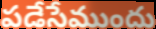
పడేసేముందు